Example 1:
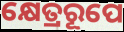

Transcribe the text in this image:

କ୍ଷେତ୍ରରୂପେ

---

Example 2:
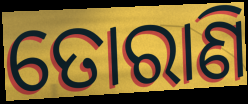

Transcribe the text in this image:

ତୋରାଣି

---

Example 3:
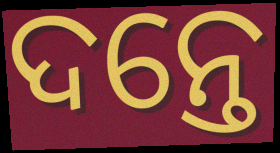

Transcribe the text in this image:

ଦନ୍ତେ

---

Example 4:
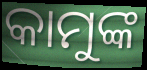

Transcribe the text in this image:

କାମୁଙ୍କ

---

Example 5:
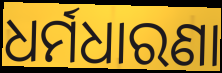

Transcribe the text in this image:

ଧର୍ମଧାରଣା